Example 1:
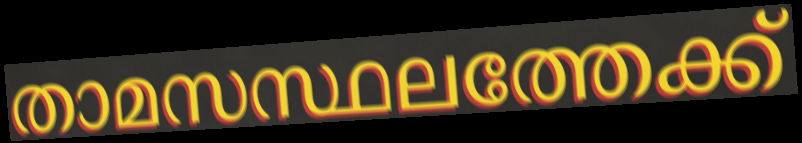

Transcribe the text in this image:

താമസസ്ഥലത്തേക്ക്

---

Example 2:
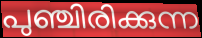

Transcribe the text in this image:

പുഞ്ചിരിക്കുന്ന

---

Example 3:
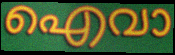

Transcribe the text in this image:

ഐവാ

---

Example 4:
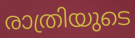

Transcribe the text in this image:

രാത്രിയുടെ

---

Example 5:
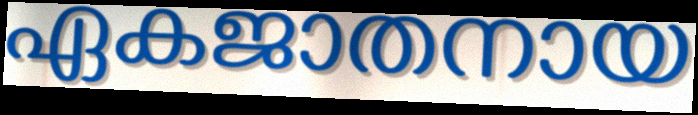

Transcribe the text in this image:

ഏകജാതനായ